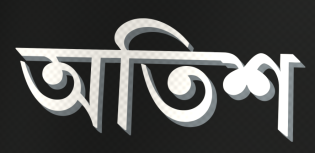
অতিশ